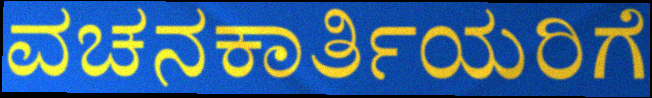
ವಚನಕಾರ್ತಿಯರಿಗೆ